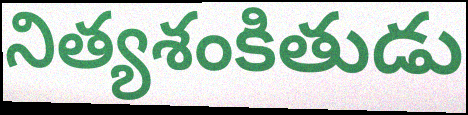
నిత్యశంకితుడు